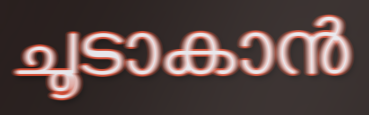
ചൂടാകാൻ